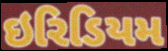
ઇરિડિયમ